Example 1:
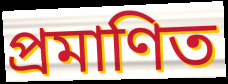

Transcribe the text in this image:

প্ৰমাণিত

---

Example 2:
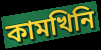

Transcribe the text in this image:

কামখিনি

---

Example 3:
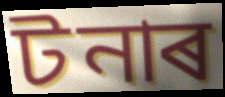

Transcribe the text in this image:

টনাৰ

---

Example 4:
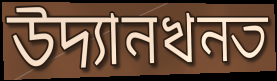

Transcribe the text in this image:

উদ্যানখনত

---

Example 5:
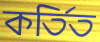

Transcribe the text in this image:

কৰ্তিত